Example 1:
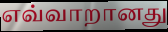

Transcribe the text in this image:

எவ்வாறானது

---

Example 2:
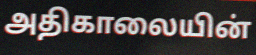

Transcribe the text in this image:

அதிகாலையின்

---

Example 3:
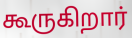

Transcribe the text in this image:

கூருகிறார்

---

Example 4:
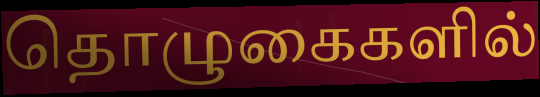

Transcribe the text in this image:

தொழுகைகளில்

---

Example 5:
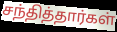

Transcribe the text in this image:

சந்தித்தார்கள்